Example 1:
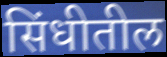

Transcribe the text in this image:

सिंधीतील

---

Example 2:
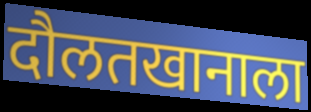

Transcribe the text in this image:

दौलतखानाला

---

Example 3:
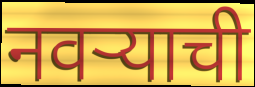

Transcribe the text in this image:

नवर्‍याची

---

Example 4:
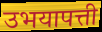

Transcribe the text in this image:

उभयापत्ती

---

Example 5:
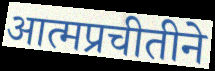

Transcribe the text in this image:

आत्मप्रचीतीने